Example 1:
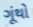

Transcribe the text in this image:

ગૂંથો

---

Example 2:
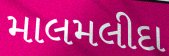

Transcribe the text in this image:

માલમલીદા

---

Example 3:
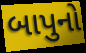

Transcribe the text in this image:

બાપુનો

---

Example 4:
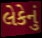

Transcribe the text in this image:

લેકેનું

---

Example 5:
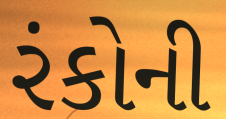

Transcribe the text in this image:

રંકોની